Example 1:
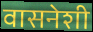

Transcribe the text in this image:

वासनेशी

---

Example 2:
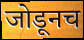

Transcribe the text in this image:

जोडूनच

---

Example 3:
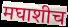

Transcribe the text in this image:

मघाशीच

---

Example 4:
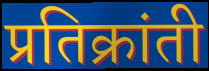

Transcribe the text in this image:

प्रतिक्रांती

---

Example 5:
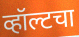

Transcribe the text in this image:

व्हॉल्टचा